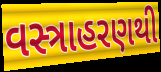
વસ્ત્રાહરણથી